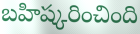
బహిష్కరించింది